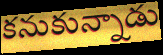
కనుకున్నాడు